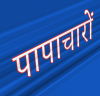
पापाचारों